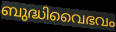
ബുദ്ധിവൈഭവം